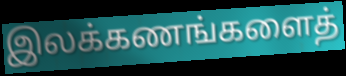
இலக்கணங்களைத்